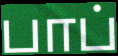
பாப்